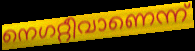
നെഗറ്റീവാണെന്ന്